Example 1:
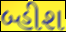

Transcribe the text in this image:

બ્હીશ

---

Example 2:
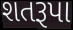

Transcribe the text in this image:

શતરૂપા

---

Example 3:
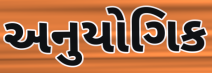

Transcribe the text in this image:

અનુયોગિક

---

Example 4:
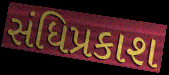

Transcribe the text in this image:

સંધિપ્રકાશ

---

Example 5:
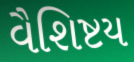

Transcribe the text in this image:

વૈશિષ્ટય